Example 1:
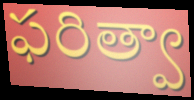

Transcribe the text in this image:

ఫరిత్వా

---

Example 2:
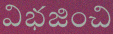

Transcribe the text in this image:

విభజించి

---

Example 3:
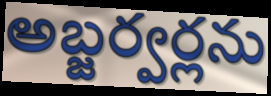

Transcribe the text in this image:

అబ్జర్వర్లను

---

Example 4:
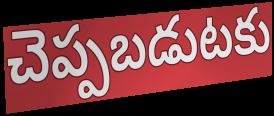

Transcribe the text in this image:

చెప్పబడుటకు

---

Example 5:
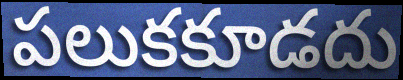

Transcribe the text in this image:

పలుకకూడదు